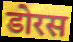
डोरस